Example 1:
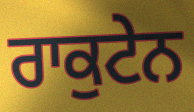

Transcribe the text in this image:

ਰਾਕੁਟੇਨ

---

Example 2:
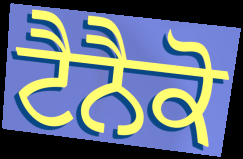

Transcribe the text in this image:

ਟੈਨੈਕੋ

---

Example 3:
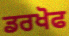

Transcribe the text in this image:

ਡਰਖੋਫ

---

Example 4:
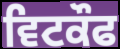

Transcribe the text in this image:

ਵਿਟਕੌਫ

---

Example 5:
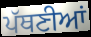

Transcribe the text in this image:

ਪੱਥਣੀਆਂ